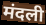
मंदली